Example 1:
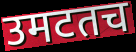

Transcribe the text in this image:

उमटतच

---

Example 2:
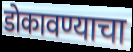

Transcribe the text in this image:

डोकावण्याचा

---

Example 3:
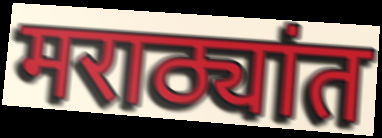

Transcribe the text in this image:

मराठ्यांत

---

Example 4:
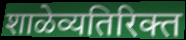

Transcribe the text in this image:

शाळेव्यतिरिक्त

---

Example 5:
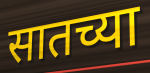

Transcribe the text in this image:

सातच्या